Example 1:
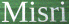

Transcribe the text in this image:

Misri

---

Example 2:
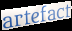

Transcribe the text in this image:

artefact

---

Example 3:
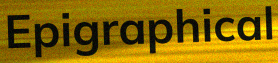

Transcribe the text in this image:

Epigraphical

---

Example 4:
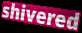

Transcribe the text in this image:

shivered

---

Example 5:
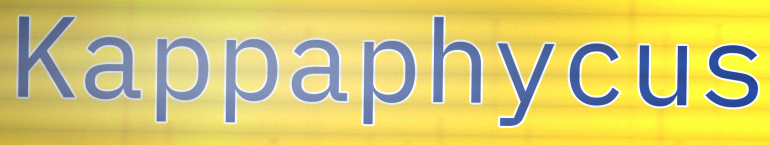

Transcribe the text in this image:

Kappaphycus